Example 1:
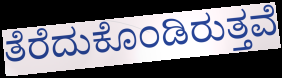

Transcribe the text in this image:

ತೆರೆದುಕೊಂಡಿರುತ್ತವೆ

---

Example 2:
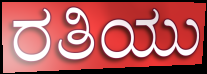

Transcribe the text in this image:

ರತಿಯು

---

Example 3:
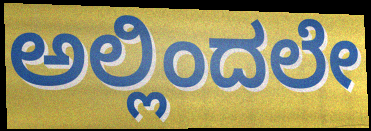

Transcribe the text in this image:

ಅಲ್ಲಿಂದಲೇ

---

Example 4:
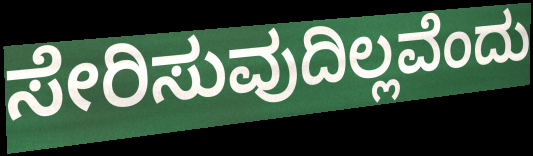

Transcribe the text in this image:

ಸೇರಿಸುವುದಿಲ್ಲವೆಂದು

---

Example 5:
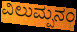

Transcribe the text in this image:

ವಿಲುಮ್ಪನಂ